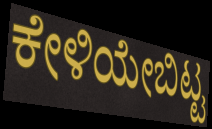
ಕೇಳಿಯೇಬಿಟ್ಟ